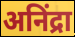
अनिंद्रा